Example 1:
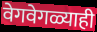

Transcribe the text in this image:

वेगवेगळ्याही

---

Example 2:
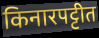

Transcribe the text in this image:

किनारपट्टीत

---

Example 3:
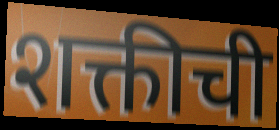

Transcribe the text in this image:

शक्तीची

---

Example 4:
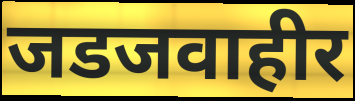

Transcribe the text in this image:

जडजवाहीर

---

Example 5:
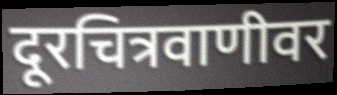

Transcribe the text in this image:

दूरचित्रवाणीवर